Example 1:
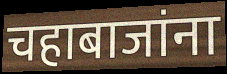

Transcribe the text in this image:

चहाबाजांना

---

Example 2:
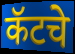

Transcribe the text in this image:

कॅटचे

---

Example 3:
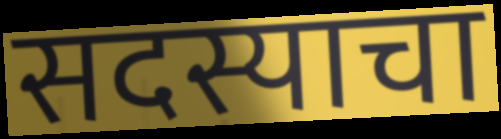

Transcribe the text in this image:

सदस्याचा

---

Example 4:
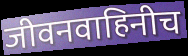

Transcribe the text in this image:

जीवनवाहिनीच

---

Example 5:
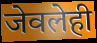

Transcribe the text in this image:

जेवलेही